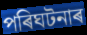
পৰিঘটনাৰ